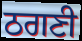
ਠਗਣੀ